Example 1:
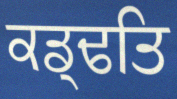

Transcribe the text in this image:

ਕਡ੍ਢਤਿ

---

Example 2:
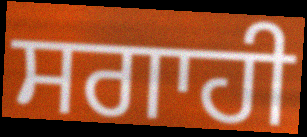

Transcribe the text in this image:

ਸਗਾਹੀ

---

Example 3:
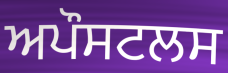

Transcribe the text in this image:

ਅਪੌਸਟਲਸ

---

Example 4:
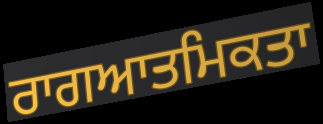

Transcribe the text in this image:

ਰਾਗਆਤਮਿਕਤਾ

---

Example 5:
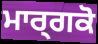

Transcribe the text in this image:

ਮਾਰ੍ਗਕੋ